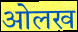
ओलख